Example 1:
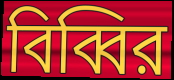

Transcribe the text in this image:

বিব্বির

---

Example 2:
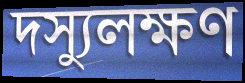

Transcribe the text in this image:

দস্যুলক্ষণ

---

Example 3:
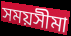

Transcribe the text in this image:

সময়সীমা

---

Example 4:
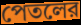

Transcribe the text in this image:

পেতলের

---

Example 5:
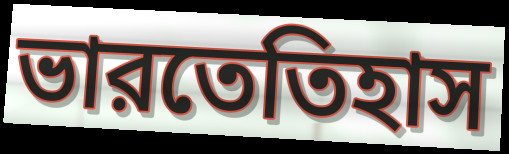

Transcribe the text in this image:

ভারতেতিহাস